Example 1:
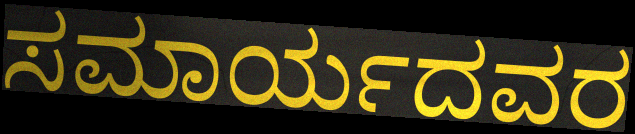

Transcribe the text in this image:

ಸಮಾರ್ಯದವರ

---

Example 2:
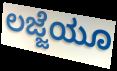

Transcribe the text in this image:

ಲಜ್ಜೆಯೂ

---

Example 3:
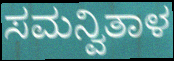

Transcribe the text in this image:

ಸಮನ್ವಿತಾಳ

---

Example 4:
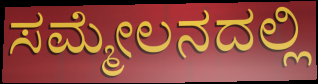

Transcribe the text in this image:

ಸಮ್ಮೇಲನದಲ್ಲಿ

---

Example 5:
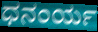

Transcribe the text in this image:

ಧನಂರ್ಯ